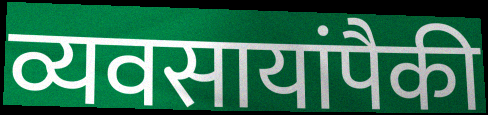
व्यवसायांपैकी